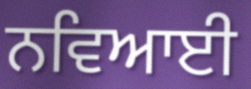
ਨਵਿਆਈ